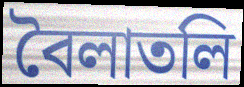
বৈলাতলি